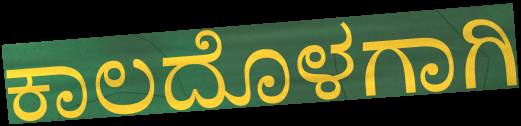
ಕಾಲದೊಳಗಾಗಿ